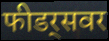
फीडर्सवर